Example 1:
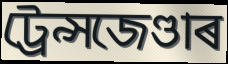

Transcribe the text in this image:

ট্ৰেন্সজেণ্ডাৰ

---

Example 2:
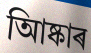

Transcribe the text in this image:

আিষ্কাৰ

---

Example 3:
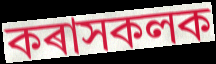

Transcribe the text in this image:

কৰাসকলক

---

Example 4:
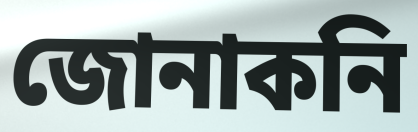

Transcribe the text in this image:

জোনাকনি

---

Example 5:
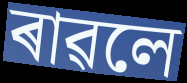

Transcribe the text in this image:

ৰাৱলে